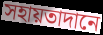
সহায়তাদানে